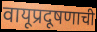
वायूप्रदूषणाची